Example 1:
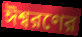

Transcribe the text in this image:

ঈশ্বরণের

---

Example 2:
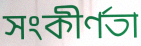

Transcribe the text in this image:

সংকীর্ণতা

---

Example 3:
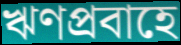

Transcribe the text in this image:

ঋণপ্রবাহে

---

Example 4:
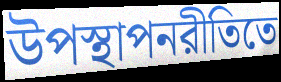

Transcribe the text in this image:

উপস্থাপনরীতিতে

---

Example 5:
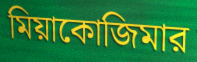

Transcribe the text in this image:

মিয়াকোজিমার